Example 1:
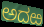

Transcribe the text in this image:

ಅದಱ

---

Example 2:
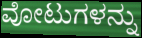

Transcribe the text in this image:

ವೋಟುಗಳನ್ನು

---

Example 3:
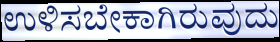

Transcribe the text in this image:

ಉಳಿಸಬೇಕಾಗಿರುವುದು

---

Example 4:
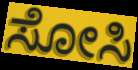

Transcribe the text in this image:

ಸೋಸಿ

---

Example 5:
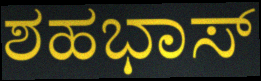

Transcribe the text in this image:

ಶಹಭಾಸ್